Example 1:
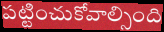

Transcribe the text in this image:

పట్టించుకోవాల్సింది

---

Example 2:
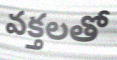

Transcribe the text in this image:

వక్తలతో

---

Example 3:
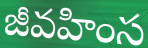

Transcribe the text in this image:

జీవహింస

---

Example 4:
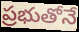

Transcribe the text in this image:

ప్రభుతోనే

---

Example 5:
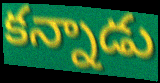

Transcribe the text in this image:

కన్నాడు